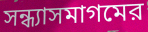
সন্ধ্যাসমাগমের